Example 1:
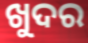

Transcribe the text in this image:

ଖୁଦର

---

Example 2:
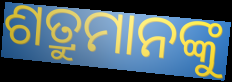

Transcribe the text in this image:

ଶତ୍ରୁମାନଙ୍କୁ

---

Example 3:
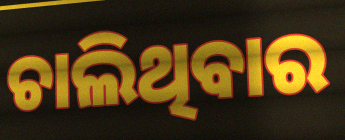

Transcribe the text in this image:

ଚାଲିଥିବାର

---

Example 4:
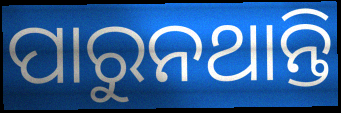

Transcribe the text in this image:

ପାରୁନଥାନ୍ତି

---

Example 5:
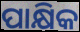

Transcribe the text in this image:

ପାକ୍ଷିକ